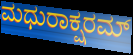
ಮಧುರಾಕ್ಷರಮ್